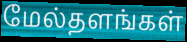
மேல்தளங்கள்